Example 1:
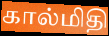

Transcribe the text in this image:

கால்மிதி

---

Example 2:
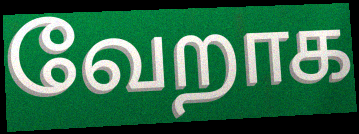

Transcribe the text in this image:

வேறாக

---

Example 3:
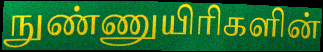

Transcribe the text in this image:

நுண்ணுயிரிகளின்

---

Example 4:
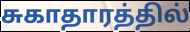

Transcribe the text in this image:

சுகாதாரத்தில்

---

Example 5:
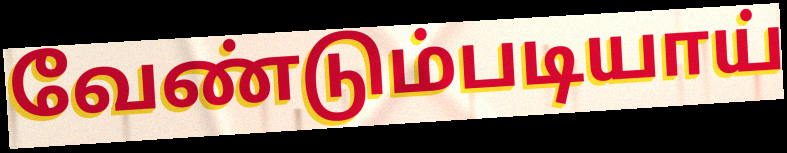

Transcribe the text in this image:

வேண்டும்படியாய்